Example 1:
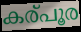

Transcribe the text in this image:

കര്പൂര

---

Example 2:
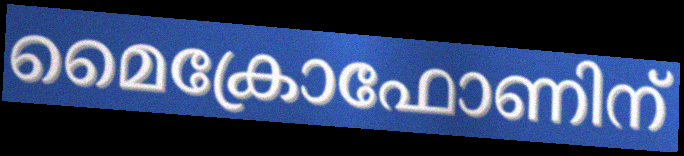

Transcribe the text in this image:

മൈക്രോഫോണിന്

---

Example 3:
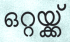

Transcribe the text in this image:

ഒറ്റയ്ക്ക്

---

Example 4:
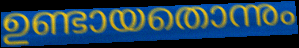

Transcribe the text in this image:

ഉണ്ടായതൊന്നും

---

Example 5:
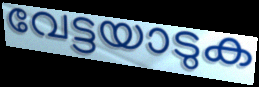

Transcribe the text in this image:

വേട്ടയാടുക